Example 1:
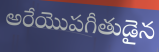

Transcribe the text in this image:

అరేయొపగీతుడైన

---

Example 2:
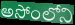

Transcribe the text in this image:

అసోంలోని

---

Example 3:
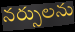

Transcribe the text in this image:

నర్సులను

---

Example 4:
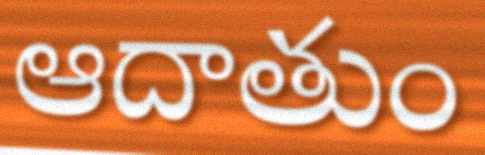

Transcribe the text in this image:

ఆదాతుం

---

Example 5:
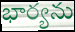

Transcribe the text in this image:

భార్యను